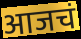
आजचं